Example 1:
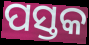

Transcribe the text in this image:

ପସ୍ତକ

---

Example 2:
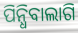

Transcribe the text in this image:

ପିନ୍ଧିବାଲାଗି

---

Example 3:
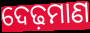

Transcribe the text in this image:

ଦେଢ଼ମାଣ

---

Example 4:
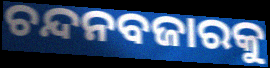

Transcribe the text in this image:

ଚନ୍ଦନବଜାରକୁ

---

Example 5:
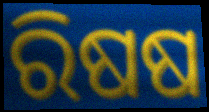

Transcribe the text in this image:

ରିଷଷ